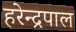
हरेन्द्रपाल